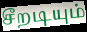
சீறடியும்